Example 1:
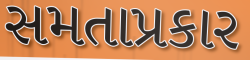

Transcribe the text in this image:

સમતાપ્રકાર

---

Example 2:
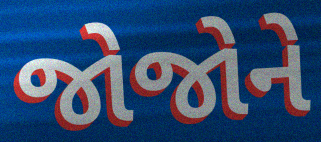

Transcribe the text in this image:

જોજોને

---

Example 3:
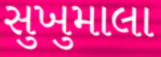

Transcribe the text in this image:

સુખુમાલા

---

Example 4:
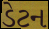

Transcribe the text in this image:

ડેટન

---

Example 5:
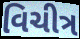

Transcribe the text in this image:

વિચીત્ર